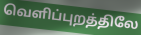
வெளிப்புறத்திலே